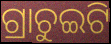
ଗ୍ରାଚୁଇଟି